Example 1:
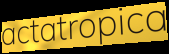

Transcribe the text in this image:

actatropica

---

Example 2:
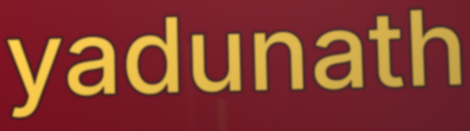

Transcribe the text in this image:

yadunath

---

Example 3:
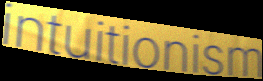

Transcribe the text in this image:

intuitionism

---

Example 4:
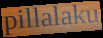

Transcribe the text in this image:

pillalaku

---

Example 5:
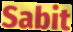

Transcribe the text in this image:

Sabit